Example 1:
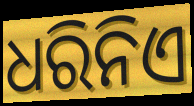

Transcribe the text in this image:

ଧରିନିଏ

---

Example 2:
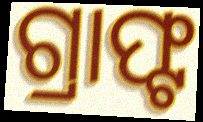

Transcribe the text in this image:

ଗ୍ରାଫ୍ଟ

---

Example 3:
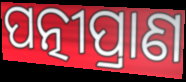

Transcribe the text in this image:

ପତ୍ନୀପ୍ରାଣ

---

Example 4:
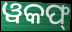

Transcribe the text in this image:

ୱକଫ୍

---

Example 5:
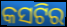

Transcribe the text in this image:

କସଟିର